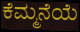
ಕೆಮ್ಮನೆಯೆ